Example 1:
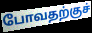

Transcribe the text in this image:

போவதற்குச்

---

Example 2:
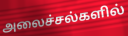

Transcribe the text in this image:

அலைச்சல்களில்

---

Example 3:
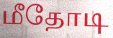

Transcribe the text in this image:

மீதோடி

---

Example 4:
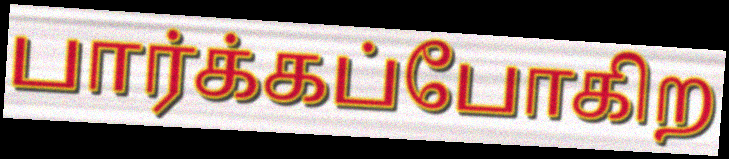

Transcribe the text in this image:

பார்க்கப்போகிற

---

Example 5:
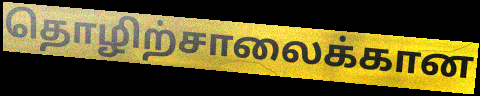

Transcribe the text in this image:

தொழிற்சாலைக்கான